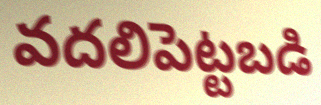
వదలిపెట్టబడి